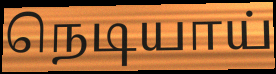
நெடியாய்